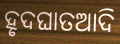
ହୃଦଘାତଆଦି